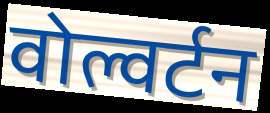
वोल्वर्टन